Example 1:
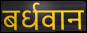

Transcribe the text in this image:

बर्धवान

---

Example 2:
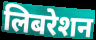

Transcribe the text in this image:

लिबरेशन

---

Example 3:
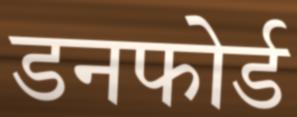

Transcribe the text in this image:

डनफोर्ड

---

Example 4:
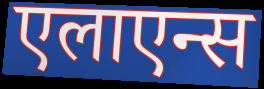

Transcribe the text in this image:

एलाएन्स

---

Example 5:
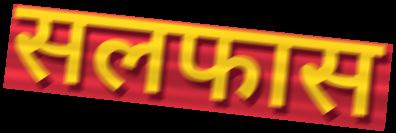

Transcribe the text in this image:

सलफास